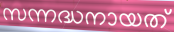
സന്നദ്ധനായത്